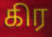
கிர